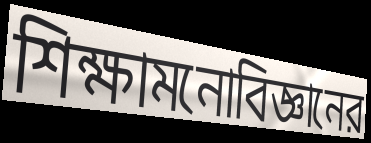
শিক্ষামনোবিজ্ঞানের